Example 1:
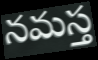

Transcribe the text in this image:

నమస్త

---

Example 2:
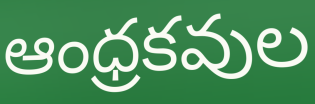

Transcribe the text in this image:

ఆంధ్రకవుల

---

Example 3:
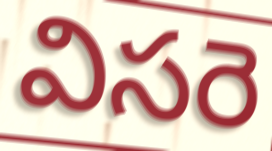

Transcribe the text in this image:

విసరె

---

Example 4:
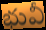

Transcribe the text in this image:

భువీ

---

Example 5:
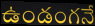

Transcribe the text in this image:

ఉండంగనే